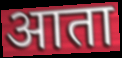
आता